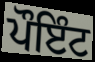
ਪੌਇੰਟ